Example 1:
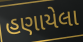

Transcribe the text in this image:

હણાયેલા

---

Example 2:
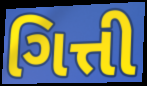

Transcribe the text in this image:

ગિત્તી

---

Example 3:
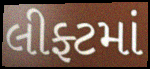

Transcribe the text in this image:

લીફ્ટમાં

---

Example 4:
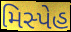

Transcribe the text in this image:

મિસ્પેહ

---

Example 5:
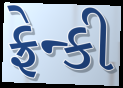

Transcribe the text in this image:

ફ્રેન્કી